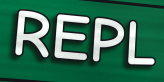
REPL